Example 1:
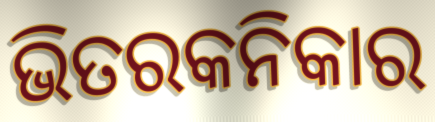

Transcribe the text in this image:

ଭିତରକନିକାର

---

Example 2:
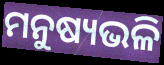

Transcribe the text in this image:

ମନୁଷ୍ୟଭଳି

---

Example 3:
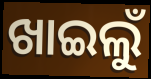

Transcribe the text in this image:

ଖାଇଲୁଁ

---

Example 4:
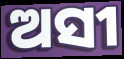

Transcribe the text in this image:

ଅସୀ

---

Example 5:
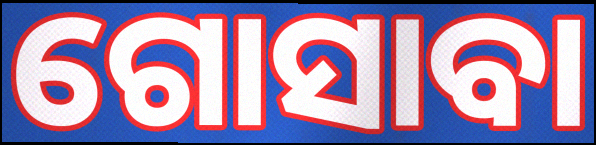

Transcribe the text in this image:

ଗୋସାବା